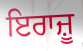
ਇਰਾਜ਼ੂ